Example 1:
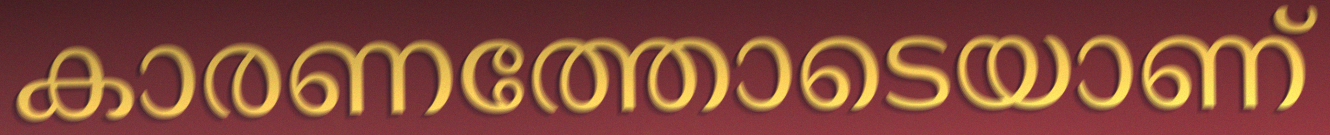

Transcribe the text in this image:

കാരണത്തോടെയാണ്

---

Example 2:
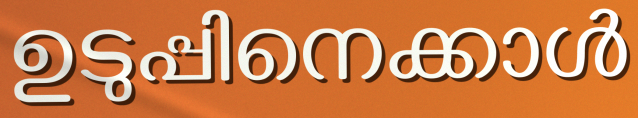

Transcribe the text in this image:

ഉടുപ്പിനെക്കാൾ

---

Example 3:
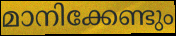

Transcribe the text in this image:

മാനിക്കേണ്ടും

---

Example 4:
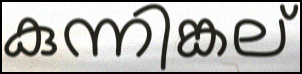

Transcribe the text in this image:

കുന്നിങ്കല്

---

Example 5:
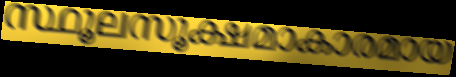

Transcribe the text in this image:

സ്ഥൂലസൂക്ഷമാകാരമായ